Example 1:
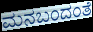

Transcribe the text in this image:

ಮನಬಂದಂತೆ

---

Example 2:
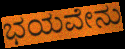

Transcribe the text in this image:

ಭಯವೇನು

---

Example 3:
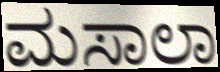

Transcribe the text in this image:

ಮಸಾಲಾ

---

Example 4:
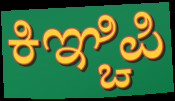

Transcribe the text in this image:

ಕಿಞ್ಚಿಪಿ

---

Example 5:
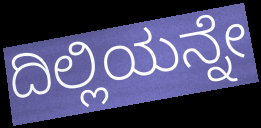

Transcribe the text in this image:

ದಿಲ್ಲಿಯನ್ನೇ